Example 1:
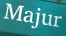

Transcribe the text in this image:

Majur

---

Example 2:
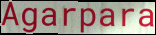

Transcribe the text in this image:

Agarpara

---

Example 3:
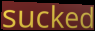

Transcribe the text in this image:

sucked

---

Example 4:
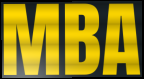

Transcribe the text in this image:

MBA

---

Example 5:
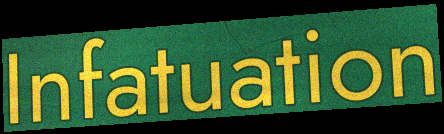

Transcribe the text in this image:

Infatuation